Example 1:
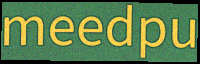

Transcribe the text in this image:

meedpu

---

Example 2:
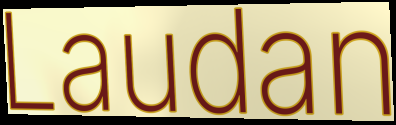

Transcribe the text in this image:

Laudan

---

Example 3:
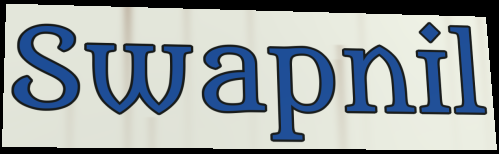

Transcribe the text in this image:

Swapnil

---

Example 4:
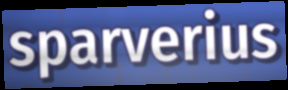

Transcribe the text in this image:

sparverius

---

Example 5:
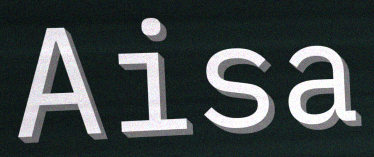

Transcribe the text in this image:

Aisa